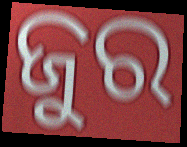
ଜୁର